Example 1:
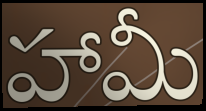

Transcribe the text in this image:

హామీ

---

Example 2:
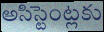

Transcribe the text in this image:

అసిస్టెంట్లకు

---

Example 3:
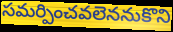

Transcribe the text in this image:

సమర్పించవలెననుకొని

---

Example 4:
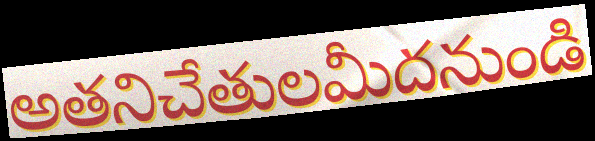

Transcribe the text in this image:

అతనిచేతులమీదనుండి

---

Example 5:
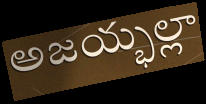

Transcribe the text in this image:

అజయ్భల్లా